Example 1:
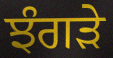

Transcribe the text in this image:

ਝੰਗੜੇ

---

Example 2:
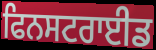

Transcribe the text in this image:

ਫਿਨਸਟਰਾਈਡ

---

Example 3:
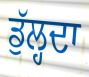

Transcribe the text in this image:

ਡੁੱਲ੍ਹਦਾ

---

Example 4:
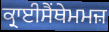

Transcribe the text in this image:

ਕ੍ਰਾਈਸੈਂਥੇਮਮਜ਼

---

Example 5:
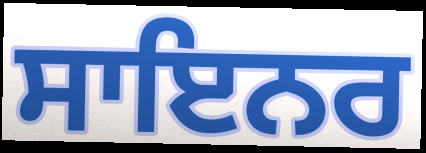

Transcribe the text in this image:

ਸਾਇਨਰ